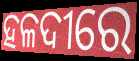
ହଳଦୀରେ